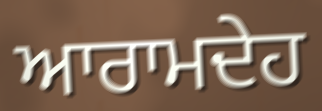
ਆਰਾਮਦੇਹ